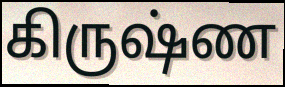
கிருஷ்ண